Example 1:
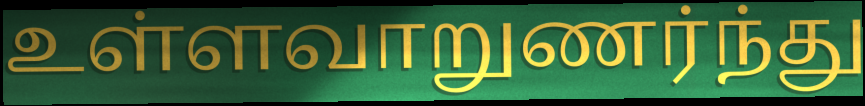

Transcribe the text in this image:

உள்ளவாறுணர்ந்து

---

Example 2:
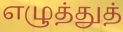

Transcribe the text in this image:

எழுத்துத்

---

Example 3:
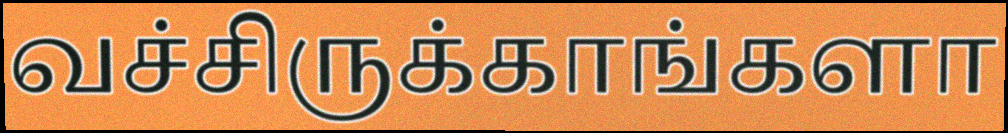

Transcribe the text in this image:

வச்சிருக்காங்களா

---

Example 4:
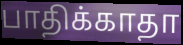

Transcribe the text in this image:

பாதிக்காதா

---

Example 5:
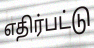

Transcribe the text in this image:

எதிர்பட்டு